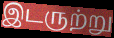
இடருற்று